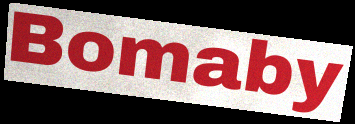
Bomaby